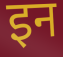
इन